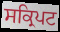
ਸਕ੍ਰਿਪਟ